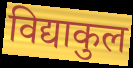
विद्याकुल